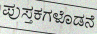
ಪುಸ್ತಕಗಳೊಡನೆ